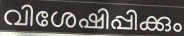
വിശേഷിപ്പിക്കും